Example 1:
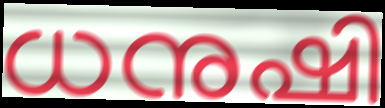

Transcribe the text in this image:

ധനുഷി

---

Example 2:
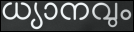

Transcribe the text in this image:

ധ്യാനവും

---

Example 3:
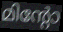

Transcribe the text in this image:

മിന്റോ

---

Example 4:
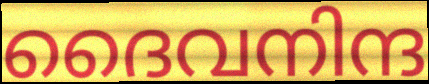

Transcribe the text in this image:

ദൈവനിന്ദ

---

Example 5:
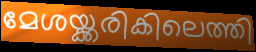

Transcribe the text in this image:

മേശയ്ക്കരികിലെത്തി